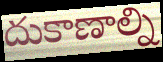
దుకాణాల్ని